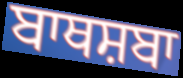
ਬਾਥਸ਼ਬਾ